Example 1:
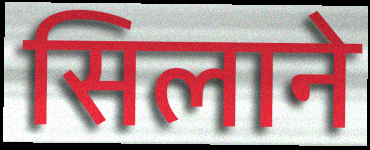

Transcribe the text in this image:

सिलाने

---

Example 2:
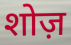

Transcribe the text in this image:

शोज़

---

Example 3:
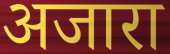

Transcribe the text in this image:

अजारा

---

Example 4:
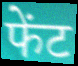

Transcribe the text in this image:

फेंट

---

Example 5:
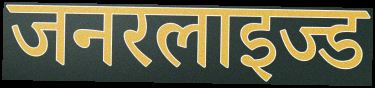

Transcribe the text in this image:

जनरलाइज्ड